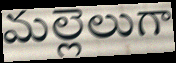
మల్లెలుగా